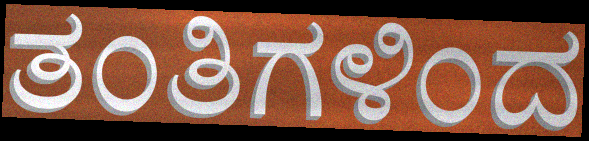
ತಂತಿಗಳಿಂದ